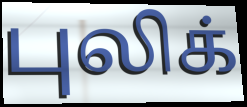
புலிக்